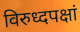
विरुध्दपक्षां